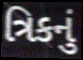
ત્રિકનું